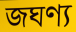
জঘণ্য